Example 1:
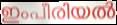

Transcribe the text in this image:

ഇംപീരിയൽ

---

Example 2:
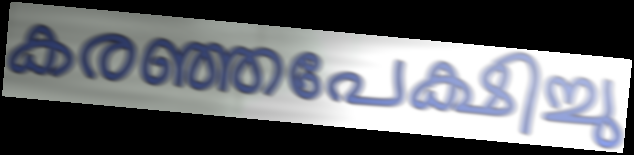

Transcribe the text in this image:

കരഞ്ഞപേക്ഷിച്ചു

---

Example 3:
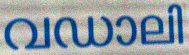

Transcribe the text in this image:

വഡാലി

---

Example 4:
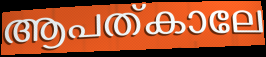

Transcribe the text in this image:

ആപത്കാലേ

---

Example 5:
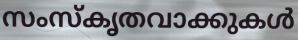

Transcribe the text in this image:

സംസ്കൃതവാക്കുകൾ